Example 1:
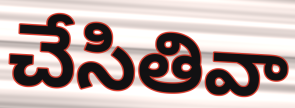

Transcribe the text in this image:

చేసితివా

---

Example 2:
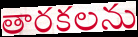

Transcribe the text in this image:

తారకలను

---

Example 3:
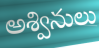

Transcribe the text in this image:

అశ్వినులు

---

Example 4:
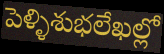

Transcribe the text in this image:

పెళ్ళిశుభలేఖల్లో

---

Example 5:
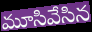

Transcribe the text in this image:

మూసివేసిన